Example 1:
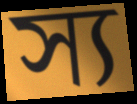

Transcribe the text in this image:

স্য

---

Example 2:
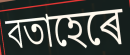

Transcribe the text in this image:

বতাহেৰে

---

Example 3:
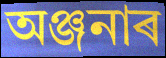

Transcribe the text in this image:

অঞ্জনাৰ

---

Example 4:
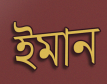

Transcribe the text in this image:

ইমান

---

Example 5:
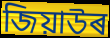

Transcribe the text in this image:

জিয়াউৰ